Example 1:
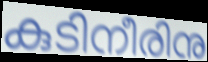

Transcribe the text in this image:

കുടിനീരിനു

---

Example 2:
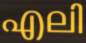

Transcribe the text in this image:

എലി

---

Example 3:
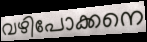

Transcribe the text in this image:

വഴിപോക്കനെ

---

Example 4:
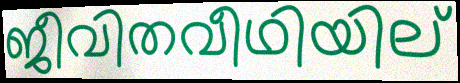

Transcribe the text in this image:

ജീവിതവീഥിയില്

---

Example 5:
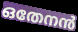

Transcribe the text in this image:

ഒതേനൻ